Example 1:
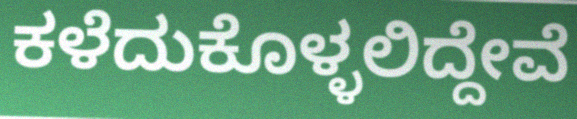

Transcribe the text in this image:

ಕಳೆದುಕೊಳ್ಳಲಿದ್ದೇವೆ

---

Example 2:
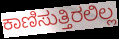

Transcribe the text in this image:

ಕಾಣಿಸುತ್ತಿರಲಿಲ್ಲ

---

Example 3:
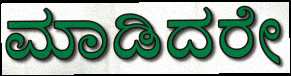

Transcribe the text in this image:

ಮಾಡಿದರೇ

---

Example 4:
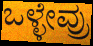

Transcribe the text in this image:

ಒಳ್ಳೇವ್ರು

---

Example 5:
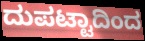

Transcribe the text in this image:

ದುಪಟ್ಟಾದಿಂದ